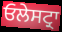
ਓਲੇਸਟ੍ਰਾ